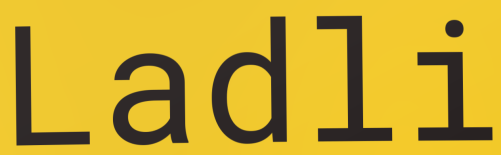
Ladli